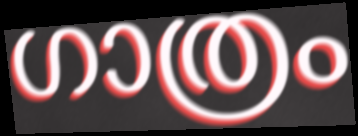
ഗാത്രം